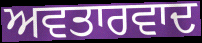
ਅਵਤਾਰਵਾਦ